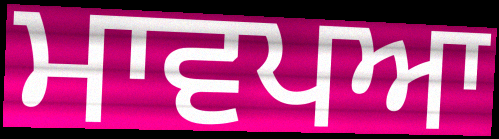
ਮਾਵਪਆ